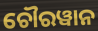
ଚୌରୱାନ